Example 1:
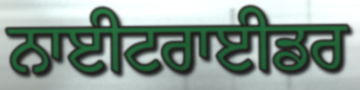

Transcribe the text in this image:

ਨਾਈਟਰਾਈਡਰ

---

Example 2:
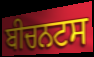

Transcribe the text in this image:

ਬੀਚਨਟਸ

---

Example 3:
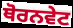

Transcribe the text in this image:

ਥੋਰਨਵੇਟ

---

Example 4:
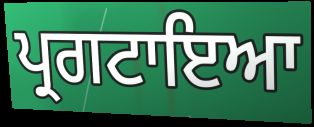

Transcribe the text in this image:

ਪ੍ਰਗਟਾਇਆ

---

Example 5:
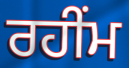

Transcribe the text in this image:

ਰਹੀਂਮ